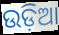
ଉଡ଼ିଆ